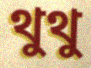
থুথু